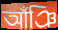
আঁঞি